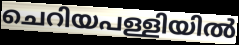
ചെറിയപള്ളിയിൽ